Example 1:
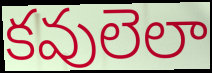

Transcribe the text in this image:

కవులెలా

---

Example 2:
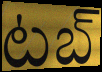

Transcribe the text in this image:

టబ్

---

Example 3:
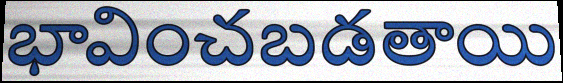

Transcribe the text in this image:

భావించబడతాయి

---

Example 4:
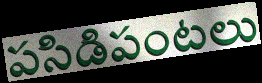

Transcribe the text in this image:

పసిడిపంటలు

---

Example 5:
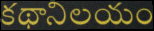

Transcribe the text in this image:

కథానిలయం